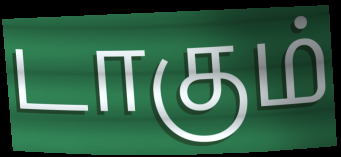
டாகும்